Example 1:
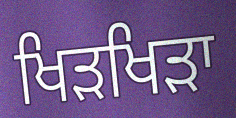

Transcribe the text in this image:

ਖਿੜਖਿੜਾ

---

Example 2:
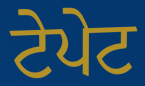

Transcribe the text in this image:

ਟੇਪੇਟ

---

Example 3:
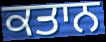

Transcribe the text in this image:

ਕਤਾਨ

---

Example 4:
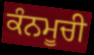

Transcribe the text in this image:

ਕੰਨਮੂਚੀ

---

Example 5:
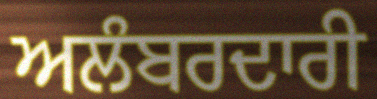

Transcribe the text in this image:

ਅਲੰਬਰਦਾਰੀ